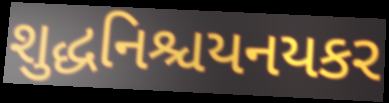
શુદ્ધનિશ્ચયનયકર